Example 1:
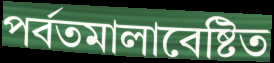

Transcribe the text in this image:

পর্বতমালাবেষ্টিত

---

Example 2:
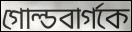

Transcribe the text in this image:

গোল্ডবার্গকে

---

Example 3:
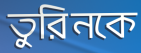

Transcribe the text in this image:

তুরিনকে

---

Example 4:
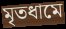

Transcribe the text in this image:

মৃতধামে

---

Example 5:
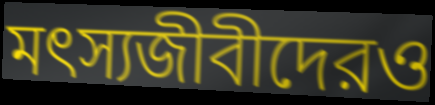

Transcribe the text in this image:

মৎস্যজীবীদেরও